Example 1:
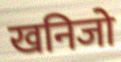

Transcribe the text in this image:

खनिजो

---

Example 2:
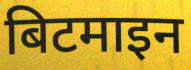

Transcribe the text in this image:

बिटमाइन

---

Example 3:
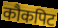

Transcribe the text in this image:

कौकपिट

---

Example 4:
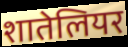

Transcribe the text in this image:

शातेलियर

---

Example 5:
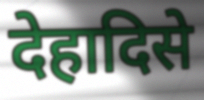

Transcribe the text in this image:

देहादिसे